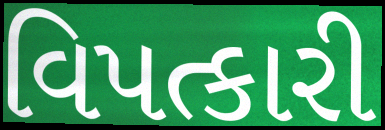
વિપત્કારી